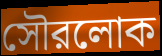
সৌরলোক